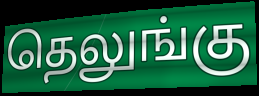
தெலுங்கு